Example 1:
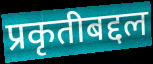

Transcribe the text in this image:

प्रकृतीबद्दल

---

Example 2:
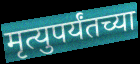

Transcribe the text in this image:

मृत्युपर्यंतच्या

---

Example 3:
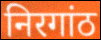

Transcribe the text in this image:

निरगांठ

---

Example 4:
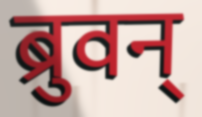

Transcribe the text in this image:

ब्रुवन्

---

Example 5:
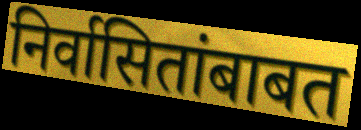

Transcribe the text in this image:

निर्वासितांबाबत